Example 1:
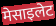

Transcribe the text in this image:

मेसाइलेट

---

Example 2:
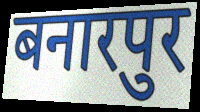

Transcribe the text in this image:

बनारपुर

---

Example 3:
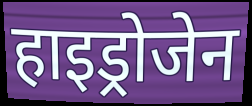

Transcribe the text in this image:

हाइड्रोजेन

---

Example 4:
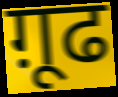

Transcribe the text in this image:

ग़ूढ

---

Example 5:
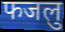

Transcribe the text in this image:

फजलु